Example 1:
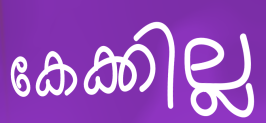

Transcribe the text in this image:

കേക്കില്ല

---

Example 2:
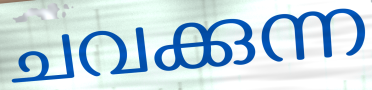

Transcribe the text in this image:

ചവക്കുന്ന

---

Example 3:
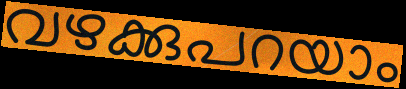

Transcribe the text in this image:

വഴക്കുപറയാം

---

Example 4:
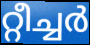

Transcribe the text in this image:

റ്റീച്ചർ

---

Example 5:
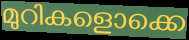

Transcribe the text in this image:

മുറികളൊക്കെ